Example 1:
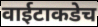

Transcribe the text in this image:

वाईटाकडेच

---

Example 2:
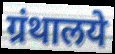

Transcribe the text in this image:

ग्रंथालये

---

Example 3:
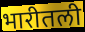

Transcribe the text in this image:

भारीतली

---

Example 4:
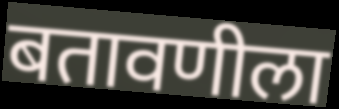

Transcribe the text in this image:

बतावणीला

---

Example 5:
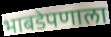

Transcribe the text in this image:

भाबडेपणाला